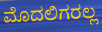
ಮೊದಲಿಗರಲ್ಲ